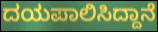
ದಯಪಾಲಿಸಿದ್ದಾನೆ